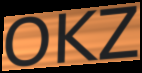
OKZ